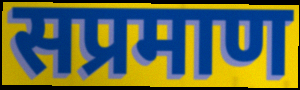
सप्रमाण